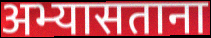
अभ्यासताना